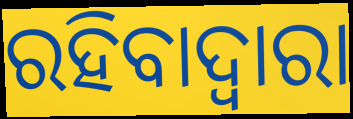
ରହିବାଦ୍ଵାରା